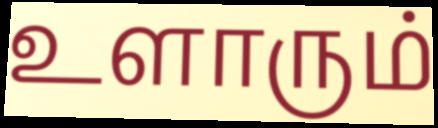
உளாரும்